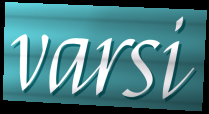
varsi